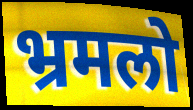
भ्रमलो